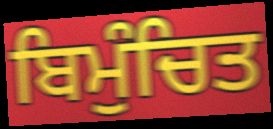
ਬਿਮੁੰਚਿਤ